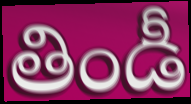
తిండీ